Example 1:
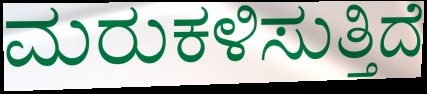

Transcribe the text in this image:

ಮರುಕಳಿಸುತ್ತಿದೆ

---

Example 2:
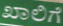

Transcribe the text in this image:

ಖಾಲಿಗೆ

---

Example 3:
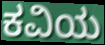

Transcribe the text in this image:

ಕವಿಯ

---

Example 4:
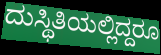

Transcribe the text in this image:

ದುಸ್ಥಿತಿಯಲ್ಲಿದ್ದರೂ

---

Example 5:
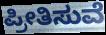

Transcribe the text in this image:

ಪ್ರೀತಿಸುವೆ